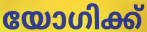
യോഗിക്ക്